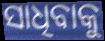
ସାଧିବାକୁ